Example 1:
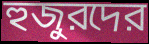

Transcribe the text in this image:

হুজুরদের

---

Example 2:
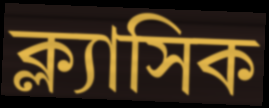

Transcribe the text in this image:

ক্ল্যাসিক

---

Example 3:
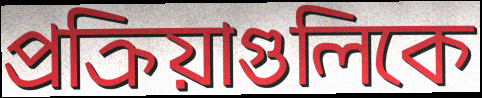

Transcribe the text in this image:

প্রক্রিয়াগুলিকে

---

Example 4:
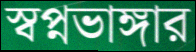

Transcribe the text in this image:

স্বপ্নভাঙ্গার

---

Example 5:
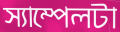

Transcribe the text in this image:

স্যাম্পেলটা